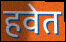
हवेत